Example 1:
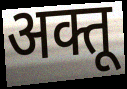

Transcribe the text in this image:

अक्तू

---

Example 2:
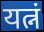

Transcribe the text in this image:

यत्नं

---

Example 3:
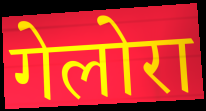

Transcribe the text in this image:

गेलोरा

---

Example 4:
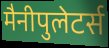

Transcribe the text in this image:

मैनीपुलेटर्स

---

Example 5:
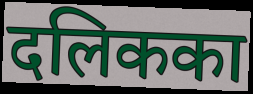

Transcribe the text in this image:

दलिकका